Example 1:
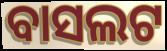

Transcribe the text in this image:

ବାସଲଟ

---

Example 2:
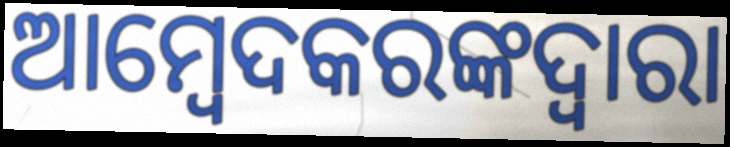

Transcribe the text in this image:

ଆମ୍ବେଦକରଙ୍କଦ୍ୱାରା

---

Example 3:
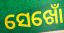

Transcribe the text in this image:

ସେଖୋଁ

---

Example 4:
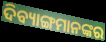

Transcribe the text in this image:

ଦିବ୍ୟାଙ୍ଗମାନଙ୍କର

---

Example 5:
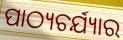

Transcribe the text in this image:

ପାଠ୍ୟଚର୍ଯ୍ୟାର